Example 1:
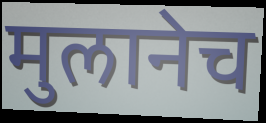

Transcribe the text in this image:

मुलानेच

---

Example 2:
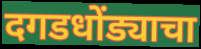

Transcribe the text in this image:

दगडधोंड्याचा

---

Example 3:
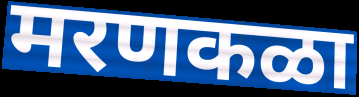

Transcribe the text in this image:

मरणकळा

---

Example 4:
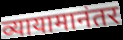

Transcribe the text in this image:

व्यायामानंतर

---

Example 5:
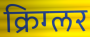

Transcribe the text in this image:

क्रिग्लर